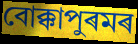
বোক্কাপুৰমৰ